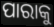
ପାରାକୁ